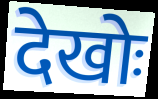
देखोः